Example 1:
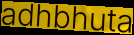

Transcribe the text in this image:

adhbhuta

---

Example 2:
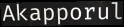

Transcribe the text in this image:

Akapporul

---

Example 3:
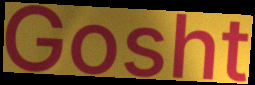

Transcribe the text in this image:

Gosht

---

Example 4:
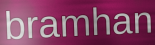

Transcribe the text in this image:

bramhan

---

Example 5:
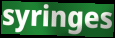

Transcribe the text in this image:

syringes